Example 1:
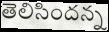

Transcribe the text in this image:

తెలిసిందన్న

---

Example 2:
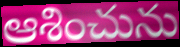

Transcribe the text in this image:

ఆశించును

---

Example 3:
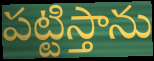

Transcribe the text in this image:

పట్టిస్తాను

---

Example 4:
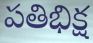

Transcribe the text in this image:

పతిభిక్ష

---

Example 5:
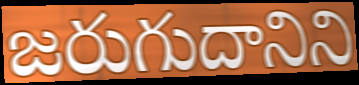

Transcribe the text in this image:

జరుగుదానిని